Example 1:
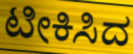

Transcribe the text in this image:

ಟೀಕಿಸಿದ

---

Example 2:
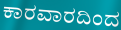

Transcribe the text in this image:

ಕಾರವಾರದಿಂದ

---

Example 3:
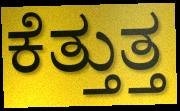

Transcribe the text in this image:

ಕೆತ್ತುತ್ತ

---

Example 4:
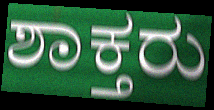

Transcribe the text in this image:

ಶಾಕ್ತರು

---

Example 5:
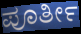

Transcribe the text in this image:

ಪೂರ್ತೀ